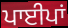
ਪਾਈਪਾਂ